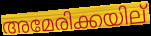
അമേരിക്കയില്